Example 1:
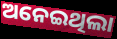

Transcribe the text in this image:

ଅନେଇଥିଲା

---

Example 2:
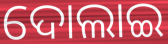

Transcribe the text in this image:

ଦୋଲାଇ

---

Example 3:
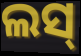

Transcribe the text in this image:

ଲସ୍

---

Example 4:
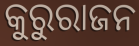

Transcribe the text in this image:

କୁରୁରାଜନ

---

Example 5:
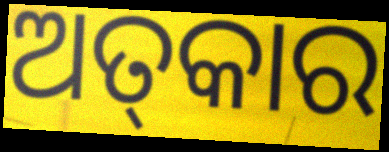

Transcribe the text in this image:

ଅତ୍‌କାର